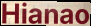
Hianao